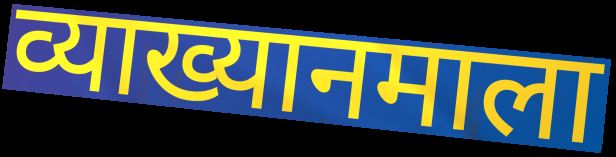
व्याख्यानमाला